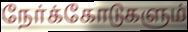
நேர்க்கோடுகளும்